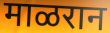
माळरान